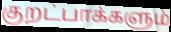
குறட்பாக்களும்